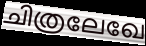
ചിത്രലേഖേ